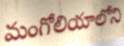
మంగోలియాలోని